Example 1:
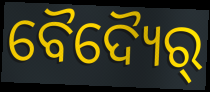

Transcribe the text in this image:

ବୈଦ୍ୟୈର୍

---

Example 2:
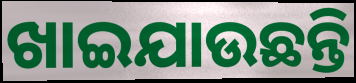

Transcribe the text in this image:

ଖାଇଯାଉଛନ୍ତି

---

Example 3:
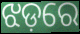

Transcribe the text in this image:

ଝଡ଼ରେ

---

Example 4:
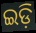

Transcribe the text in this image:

ଇଡ଼ି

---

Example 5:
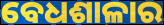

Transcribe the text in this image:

ବେଧଶାଳାର